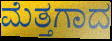
ಮೆತ್ತಗಾದ